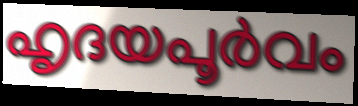
ഹൃദയപൂർവം